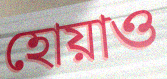
হোয়াও